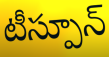
టీస్పూన్